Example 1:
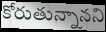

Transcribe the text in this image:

కోరుతున్నానని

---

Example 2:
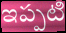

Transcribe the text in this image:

ఇప్పటి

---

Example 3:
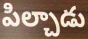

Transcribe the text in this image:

పిల్చాడు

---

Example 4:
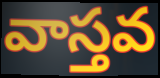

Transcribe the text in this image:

వాస్తవ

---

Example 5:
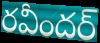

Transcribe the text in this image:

రవీందర్